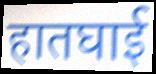
हातघाई